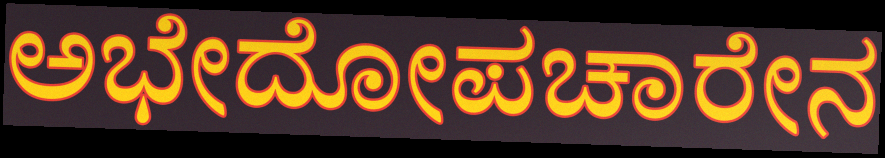
ಅಭೇದೋಪಚಾರೇನ